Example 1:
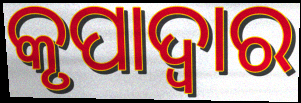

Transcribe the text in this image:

କୃପାଦ୍ଵାର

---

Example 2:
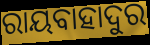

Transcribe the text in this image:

ରାୟବାହାଦୁର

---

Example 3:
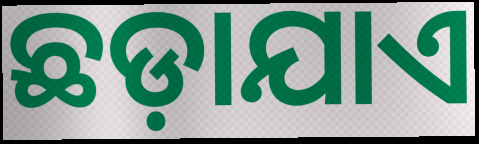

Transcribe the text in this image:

ଛଡ଼ାଯାଏ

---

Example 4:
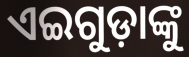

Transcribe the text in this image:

ଏଇଗୁଡ଼ାଙ୍କୁ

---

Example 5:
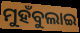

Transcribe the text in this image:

ମୁହଁବୁଲାଇ